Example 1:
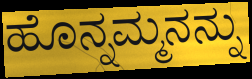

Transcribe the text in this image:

ಹೊನ್ನಮ್ಮನನ್ನು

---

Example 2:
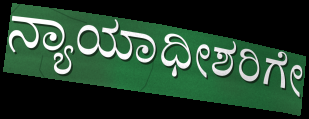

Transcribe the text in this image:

ನ್ಯಾಯಾಧೀಶರಿಗೇ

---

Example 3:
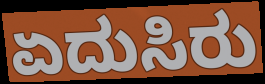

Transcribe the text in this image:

ಏದುಸಿರು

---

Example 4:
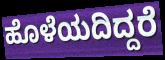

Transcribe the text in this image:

ಹೊಳೆಯದಿದ್ದರೆ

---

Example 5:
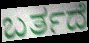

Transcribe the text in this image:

ಬರ್ತದೆ